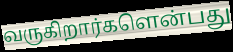
வருகிறார்களென்பது